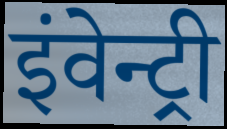
इंवेन्ट्री